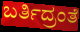
ಬರ್ತಿದ್ರಂತೆ